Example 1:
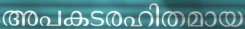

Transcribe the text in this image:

അപകടരഹിതമായ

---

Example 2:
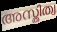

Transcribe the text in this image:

അസ്തിത്വ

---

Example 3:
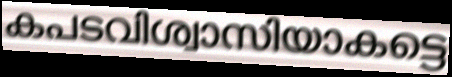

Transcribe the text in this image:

കപടവിശ്വാസിയാകട്ടെ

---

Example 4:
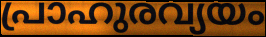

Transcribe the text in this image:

പ്രാഹുരവ്യയം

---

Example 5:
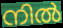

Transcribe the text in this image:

നിൽ